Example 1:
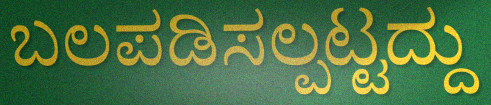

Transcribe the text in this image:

ಬಲಪಡಿಸಲ್ಪಟ್ಟದ್ದು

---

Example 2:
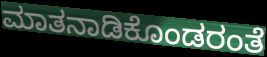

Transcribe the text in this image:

ಮಾತನಾಡಿಕೊಂಡರಂತೆ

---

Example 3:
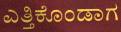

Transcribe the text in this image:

ಎತ್ತಿಕೊಂಡಾಗ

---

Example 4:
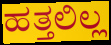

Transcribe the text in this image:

ಹತ್ತಲಿಲ್ಲ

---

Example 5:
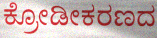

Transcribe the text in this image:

ಕ್ರೋಡೀಕರಣದ